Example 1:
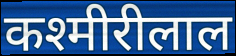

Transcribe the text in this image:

कश्मीरीलाल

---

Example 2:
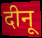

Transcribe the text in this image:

दीनू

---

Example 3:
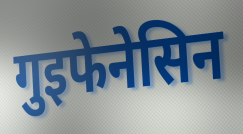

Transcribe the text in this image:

गुइफेनेसिन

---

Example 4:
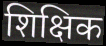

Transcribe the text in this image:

शिक्षिक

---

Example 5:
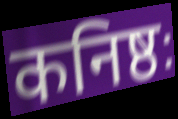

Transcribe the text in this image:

कनिष्ठः